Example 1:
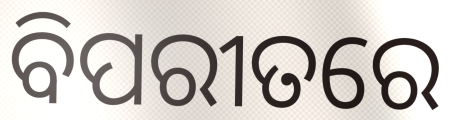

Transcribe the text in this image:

ବିପରୀତରେ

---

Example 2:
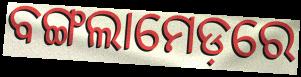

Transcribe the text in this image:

ବଙ୍ଗଲାମେଡ଼ରେ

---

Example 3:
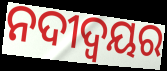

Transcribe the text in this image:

ନଦୀଦ୍ବୟର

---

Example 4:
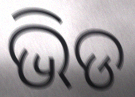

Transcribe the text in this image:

ଭିଡ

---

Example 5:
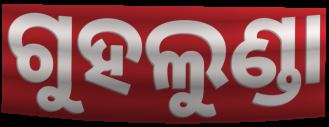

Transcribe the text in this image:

ଗୁହଲୁଣ୍ଡା